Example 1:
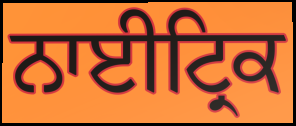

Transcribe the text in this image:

ਨਾਈਟ੍ਰਿਕ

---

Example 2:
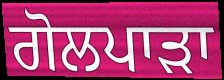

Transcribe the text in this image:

ਗੋਲਪਾੜਾ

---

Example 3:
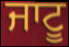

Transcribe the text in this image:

ਜਾਟੂ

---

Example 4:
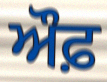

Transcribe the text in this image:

ਔਫ਼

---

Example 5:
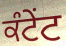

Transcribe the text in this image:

ਕੰਟੇਂਟ